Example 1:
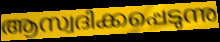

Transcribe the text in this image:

ആസ്വദിക്കപ്പെടുന്നു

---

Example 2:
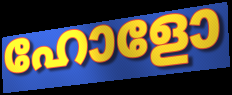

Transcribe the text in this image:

ഹോളോ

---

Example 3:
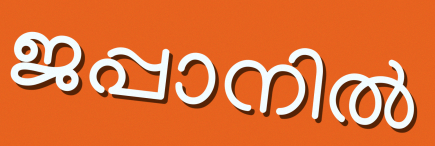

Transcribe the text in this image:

ജപ്പാനിൽ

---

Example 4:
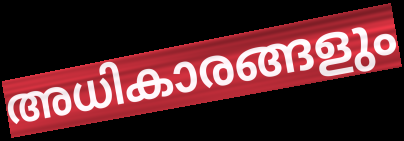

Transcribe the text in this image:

അധികാരങ്ങളും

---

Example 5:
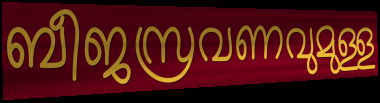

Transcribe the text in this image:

ബീജസ്രവണവുമുള്ള